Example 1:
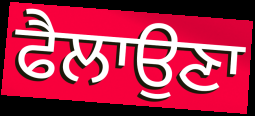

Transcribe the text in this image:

ਫੈਲਾਉਣਾ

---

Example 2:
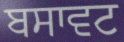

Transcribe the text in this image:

ਬਸਾਵਟ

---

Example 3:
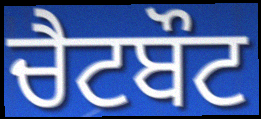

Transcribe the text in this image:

ਚੈਟਬੌਟ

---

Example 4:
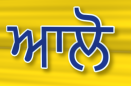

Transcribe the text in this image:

ਆਲੋ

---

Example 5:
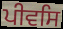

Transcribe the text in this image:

ਪੀਵਸਿ